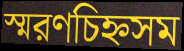
স্মরণচিহ্নসম